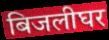
बिजलीघर